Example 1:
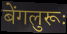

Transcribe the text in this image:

बेंगलुरूः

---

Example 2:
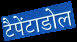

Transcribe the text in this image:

टैपेंटाडोल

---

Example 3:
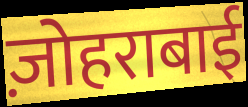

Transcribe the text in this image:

ज़ोहराबाई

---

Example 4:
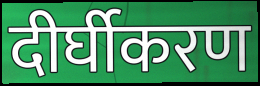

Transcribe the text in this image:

दीर्घीकरण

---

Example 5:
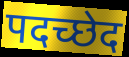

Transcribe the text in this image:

पदच्छेद